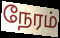
நேரம்